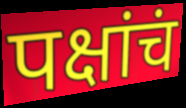
पक्षांचं